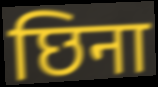
छिना